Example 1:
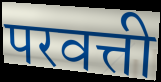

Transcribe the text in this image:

परवत्ती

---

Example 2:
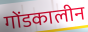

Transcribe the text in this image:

गोंडकालीन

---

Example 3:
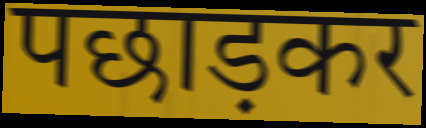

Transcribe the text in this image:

पछाड़कर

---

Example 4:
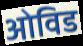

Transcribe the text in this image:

ओविड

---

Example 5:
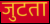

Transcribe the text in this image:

जुटता